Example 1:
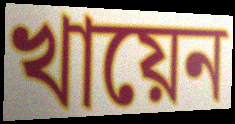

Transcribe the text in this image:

খায়েন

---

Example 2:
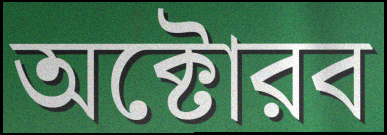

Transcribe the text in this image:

অক্টোরব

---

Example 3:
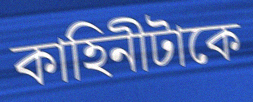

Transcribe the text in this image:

কাহিনীটাকে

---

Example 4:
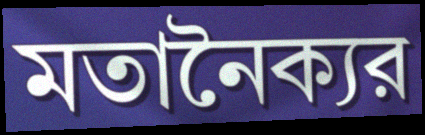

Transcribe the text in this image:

মতানৈক্যর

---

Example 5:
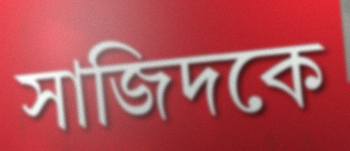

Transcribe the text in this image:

সাজিদকে